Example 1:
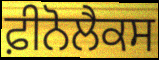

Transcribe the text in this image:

ਫ਼ੀਨੋਲੈਕਸ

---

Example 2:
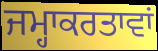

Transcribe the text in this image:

ਜਮ੍ਹਾਕਰਤਾਵਾਂ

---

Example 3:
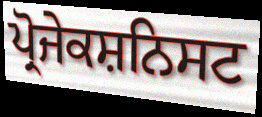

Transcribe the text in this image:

ਪ੍ਰੋਜੇਕਸ਼ਨਿਸਟ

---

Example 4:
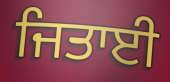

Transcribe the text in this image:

ਜਿਤਾਈ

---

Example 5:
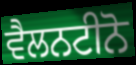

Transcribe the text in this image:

ਵੈਲਨਟੀਨੋ